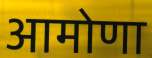
आमोणा